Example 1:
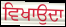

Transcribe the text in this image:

ਵਿਖਾਉਦਾ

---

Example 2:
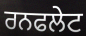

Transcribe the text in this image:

ਰਨਫਲੇਟ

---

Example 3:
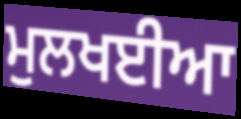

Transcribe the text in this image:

ਮੁਲਖਈਆ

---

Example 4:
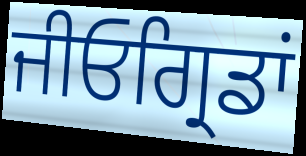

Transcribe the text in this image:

ਜੀਓਗ੍ਰਿਡਾਂ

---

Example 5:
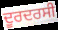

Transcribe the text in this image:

ਦੂਰਦਰਸੀ